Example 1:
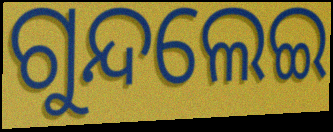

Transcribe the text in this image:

ଗୁନ୍ଦଲେଇ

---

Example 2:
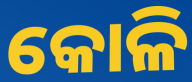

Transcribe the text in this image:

କୋଳି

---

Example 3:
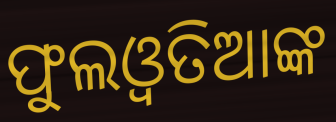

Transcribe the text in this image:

ଫୁଲଓ୍ୱତିଆଙ୍କ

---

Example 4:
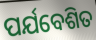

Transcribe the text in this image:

ପର୍ଯବେଶିତ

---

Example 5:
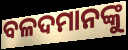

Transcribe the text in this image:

ବଳଦମାନଙ୍କୁ